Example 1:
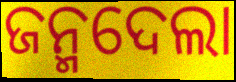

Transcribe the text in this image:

ଜନ୍ମଦେଲା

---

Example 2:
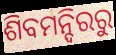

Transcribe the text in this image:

ଶିବମନ୍ଦିରରୁ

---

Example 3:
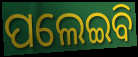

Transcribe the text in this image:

ପଲେଇବି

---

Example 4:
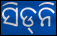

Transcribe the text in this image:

ସିଡ୍‍ନି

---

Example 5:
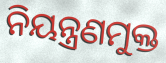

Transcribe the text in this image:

ନିୟନ୍ତ୍ରଣମୁକ୍ତ